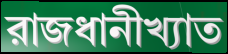
রাজধানীখ্যাত